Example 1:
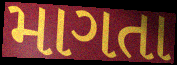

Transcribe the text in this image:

માગતા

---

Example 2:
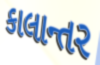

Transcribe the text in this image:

કાલાન્તર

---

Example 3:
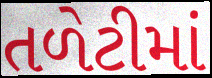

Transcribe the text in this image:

તળેટીમાં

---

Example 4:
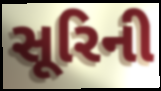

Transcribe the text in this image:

સૂરિની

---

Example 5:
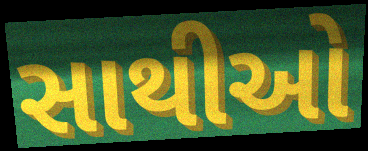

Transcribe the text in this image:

સાથીઓ